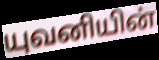
யுவனியின்